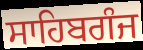
ਸਾਹਿਬਗੰਜ